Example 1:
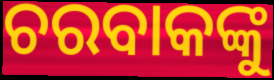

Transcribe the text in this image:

ଚରବାକଙ୍କୁ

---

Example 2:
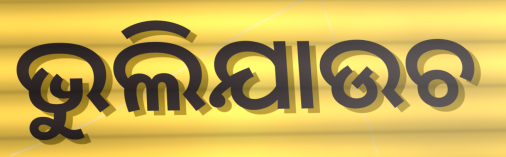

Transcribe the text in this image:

ଭୁଲିଯାଉଚ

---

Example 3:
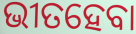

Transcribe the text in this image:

ଭୀତହେବା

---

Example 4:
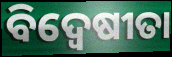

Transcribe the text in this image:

ବିଦ୍ଵେଷୀତା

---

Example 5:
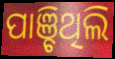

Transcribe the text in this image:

ପାଞ୍ଚିଥିଲି